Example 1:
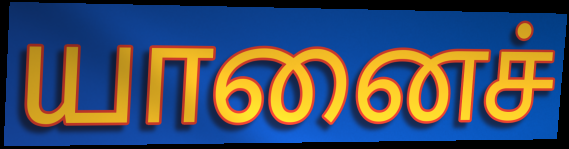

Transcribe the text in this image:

யானைச்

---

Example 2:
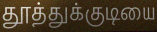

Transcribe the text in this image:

தூத்துக்குடியை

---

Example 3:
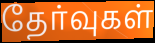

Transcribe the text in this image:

தேர்வுகள்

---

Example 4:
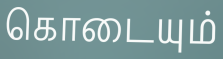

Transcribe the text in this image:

கொடையும்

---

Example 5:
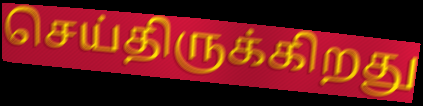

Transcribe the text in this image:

செய்திருக்கிறது